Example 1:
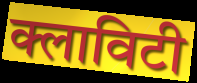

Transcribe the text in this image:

क्लाविटी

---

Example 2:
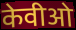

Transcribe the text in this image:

केवीओ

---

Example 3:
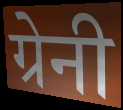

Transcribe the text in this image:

ग्रेनी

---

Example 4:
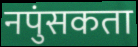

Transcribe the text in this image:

नपुंसकता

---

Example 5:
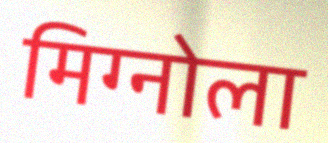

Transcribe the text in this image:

मिग्नोला